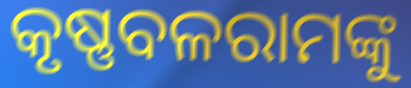
କୃଷ୍ଣବଳରାମଙ୍କୁ